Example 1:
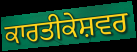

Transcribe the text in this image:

ਕਾਰਤੀਕੇਸ਼ਵਰ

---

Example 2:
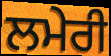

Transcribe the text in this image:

ਲਮੇਰੀ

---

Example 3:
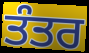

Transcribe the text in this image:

ਤੰਤਰ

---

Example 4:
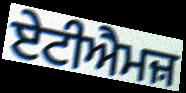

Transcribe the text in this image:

ਏਟੀਐਮਜ਼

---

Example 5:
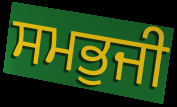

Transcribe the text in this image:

ਸਮਭੁਜੀ